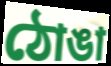
ঠোঙা